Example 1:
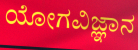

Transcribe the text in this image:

ಯೋಗವಿಜ್ಞಾನ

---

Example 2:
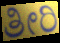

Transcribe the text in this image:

ತೀರಿ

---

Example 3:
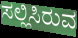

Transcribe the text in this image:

ಸಲ್ಲಿಸಿರುವ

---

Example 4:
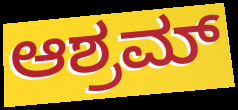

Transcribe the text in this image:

ಆಶ್ರಮ್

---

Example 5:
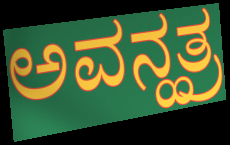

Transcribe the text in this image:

ಅವನ್ಹತ್ರ